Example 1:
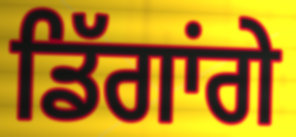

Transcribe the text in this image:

ਡਿੱਗਾਂਗੇ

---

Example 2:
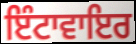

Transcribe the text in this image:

ਇੰਟਾਵਾਇਰ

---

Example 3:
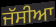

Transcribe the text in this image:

ਜੱਸੀਆ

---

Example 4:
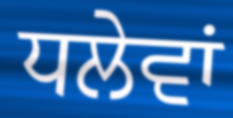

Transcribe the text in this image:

ਧਲੇਵਾਂ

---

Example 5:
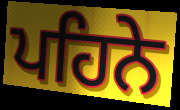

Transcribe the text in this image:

ਪਹਿਨੇ